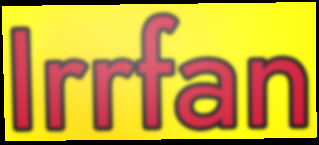
Irrfan